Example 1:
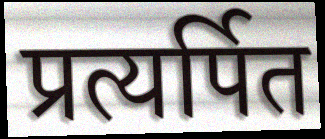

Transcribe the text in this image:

प्रत्यर्पित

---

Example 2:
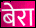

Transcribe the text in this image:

बेरा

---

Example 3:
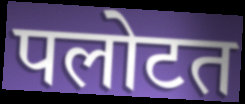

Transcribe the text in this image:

पलोटत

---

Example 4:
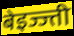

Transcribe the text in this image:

बेइज्ज्ती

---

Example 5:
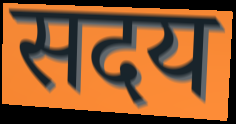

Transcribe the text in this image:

सदय